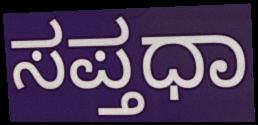
ಸಪ್ತಧಾ